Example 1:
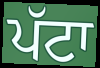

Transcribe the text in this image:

ਪੱਟਾ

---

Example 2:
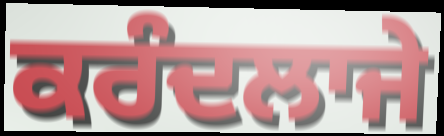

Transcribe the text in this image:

ਕਰੰਦਲਾਜੇ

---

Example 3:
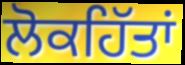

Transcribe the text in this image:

ਲੋਕਹਿੱਤਾਂ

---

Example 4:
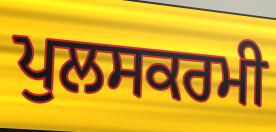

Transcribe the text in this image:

ਪੁਲਸਕਰਮੀ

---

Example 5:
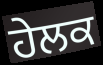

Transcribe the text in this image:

ਹੇਲਕ